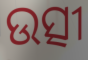
ଉତ୍ସୀ